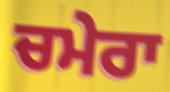
ਚਮੇਰਾ